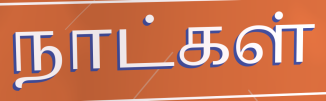
நாட்கள்